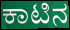
ಕಾಟಿನ